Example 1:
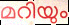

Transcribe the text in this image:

മറിയും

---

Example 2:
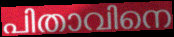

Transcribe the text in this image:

പിതാവിനെ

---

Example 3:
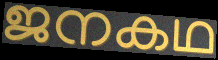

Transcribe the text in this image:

ജനകഥ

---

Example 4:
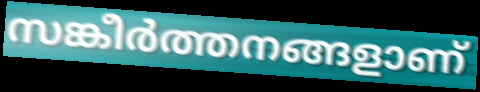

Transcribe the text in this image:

സങ്കീർത്തനങ്ങളാണ്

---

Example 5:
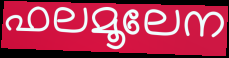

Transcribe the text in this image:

ഫലമൂലേന